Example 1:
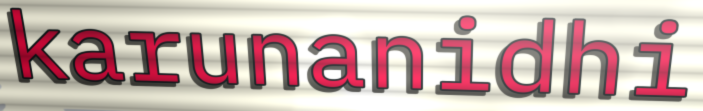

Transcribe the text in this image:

karunanidhi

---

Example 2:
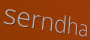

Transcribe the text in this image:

serndha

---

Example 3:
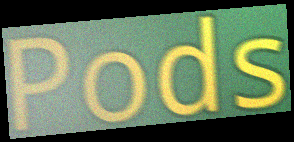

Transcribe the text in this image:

Pods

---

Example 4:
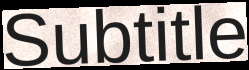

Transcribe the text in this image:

Subtitle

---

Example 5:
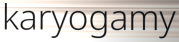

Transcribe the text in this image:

karyogamy